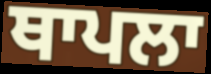
ਥਾਪਲਾ